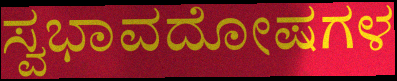
ಸ್ವಭಾವದೋಷಗಳ